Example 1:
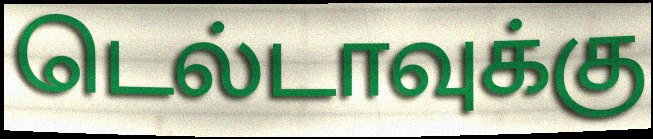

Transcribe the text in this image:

டெல்டாவுக்கு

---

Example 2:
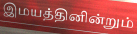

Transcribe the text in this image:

இமயத்தினின்றும்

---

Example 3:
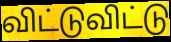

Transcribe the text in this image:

விட்டுவிட்டு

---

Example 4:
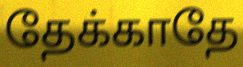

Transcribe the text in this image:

தேக்காதே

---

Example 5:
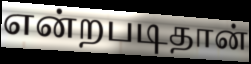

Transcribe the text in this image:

என்றபடிதான்